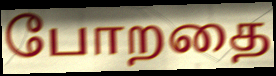
போறதை